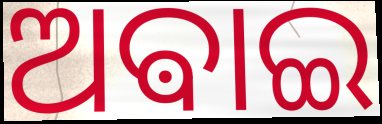
ଅଵାଇ